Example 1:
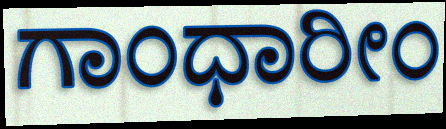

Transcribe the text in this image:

ಗಾಂಧಾರೀಂ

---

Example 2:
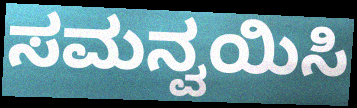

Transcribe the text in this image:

ಸಮನ್ವಯಿಸಿ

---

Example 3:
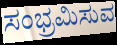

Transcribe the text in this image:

ಸಂಭ್ರಮಿಸುವ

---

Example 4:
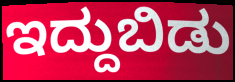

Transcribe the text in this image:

ಇದ್ದುಬಿಡು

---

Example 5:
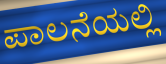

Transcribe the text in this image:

ಪಾಲನೆಯಲ್ಲಿ